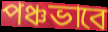
পঞ্চভাবে